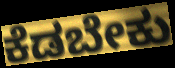
ಕೆಡಬೇಕು